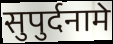
सुपुर्दनामे